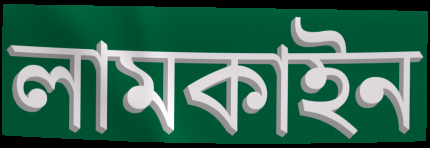
লামকাইন